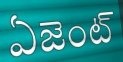
ఏజెంట్